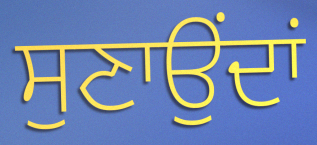
ਸੁਣਾਉਂਦਾਂ